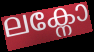
ലക്നോ